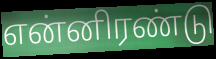
என்னிரண்டு